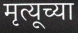
मृत्यूच्या